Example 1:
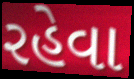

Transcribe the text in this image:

રહેવા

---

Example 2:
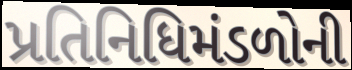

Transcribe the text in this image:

પ્રતિનિધિમંડળોની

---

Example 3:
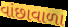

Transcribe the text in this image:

વાંછાવાળા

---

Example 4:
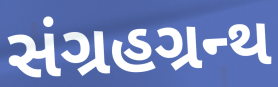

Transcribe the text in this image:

સંગ્રહગ્રન્થ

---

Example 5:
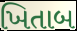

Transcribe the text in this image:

ખિતાબ